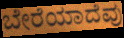
ಬೇರೆಯಾದೆವು